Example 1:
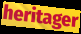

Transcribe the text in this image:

heritager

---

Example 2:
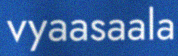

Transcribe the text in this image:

vyaasaala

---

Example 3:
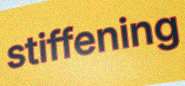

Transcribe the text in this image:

stiffening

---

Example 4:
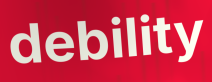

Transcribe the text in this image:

debility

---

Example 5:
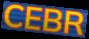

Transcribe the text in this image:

CEBR